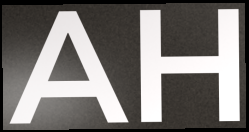
AH